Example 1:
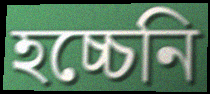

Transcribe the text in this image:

হচ্চেনি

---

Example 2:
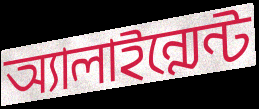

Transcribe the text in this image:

অ্যালাইন্মেন্ট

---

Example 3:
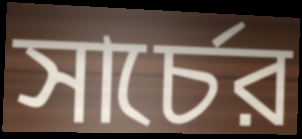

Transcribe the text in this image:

সার্চের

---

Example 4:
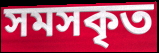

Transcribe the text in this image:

সমসকৃত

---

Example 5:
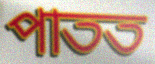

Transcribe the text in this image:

পাতত